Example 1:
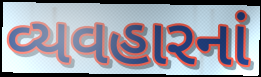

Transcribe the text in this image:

વ્યવહારનાં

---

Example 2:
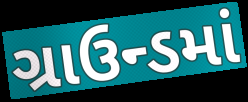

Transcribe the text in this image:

ગ્રાઉન્ડમાં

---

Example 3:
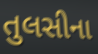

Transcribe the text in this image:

તુલસીના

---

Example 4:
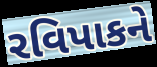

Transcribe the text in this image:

રવિપાકને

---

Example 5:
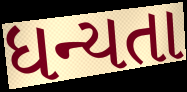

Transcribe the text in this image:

ધન્યતા